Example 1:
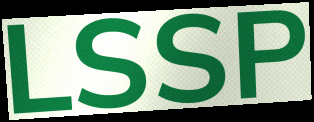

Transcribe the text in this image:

LSSP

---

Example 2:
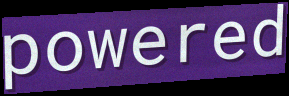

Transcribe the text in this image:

powered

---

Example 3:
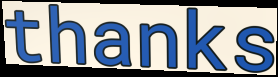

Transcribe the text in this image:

thanks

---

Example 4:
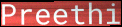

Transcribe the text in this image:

Preethi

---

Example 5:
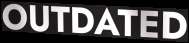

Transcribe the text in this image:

OUTDATED